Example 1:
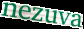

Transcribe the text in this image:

nezuva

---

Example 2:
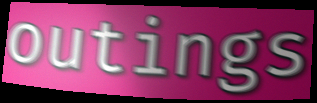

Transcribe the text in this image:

outings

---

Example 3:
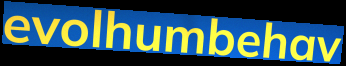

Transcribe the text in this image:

evolhumbehav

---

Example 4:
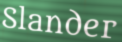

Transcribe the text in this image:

Slander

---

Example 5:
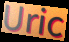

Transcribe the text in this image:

Uric